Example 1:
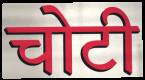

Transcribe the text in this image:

चोटी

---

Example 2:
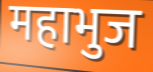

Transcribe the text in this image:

महाभुज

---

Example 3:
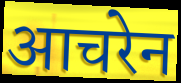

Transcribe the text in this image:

आचरेन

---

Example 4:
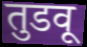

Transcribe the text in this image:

तुडवू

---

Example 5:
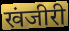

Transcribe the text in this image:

खंजीरी